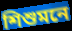
শিশুমনে